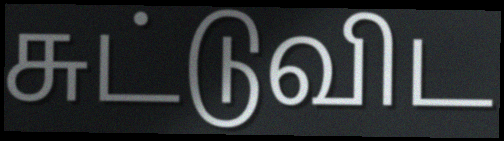
சுட்டுவிட